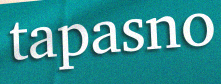
tapasno